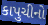
કાપુચીનો